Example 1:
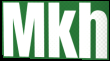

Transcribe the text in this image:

Mkh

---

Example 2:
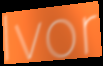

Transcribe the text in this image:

Ivor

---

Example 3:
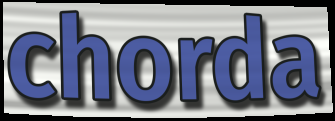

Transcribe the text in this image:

chorda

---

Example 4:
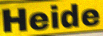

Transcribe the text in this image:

Heide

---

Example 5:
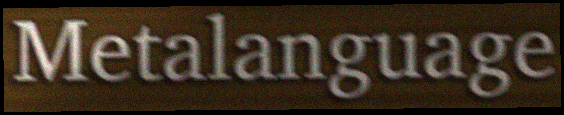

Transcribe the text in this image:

Metalanguage